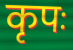
कृपः